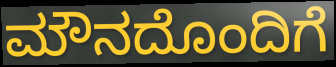
ಮೌನದೊಂದಿಗೆ